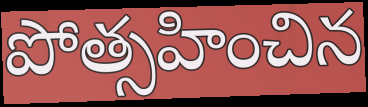
పోత్సహించిన